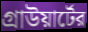
গ্রাউয়ার্টের